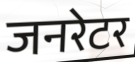
जनरेटर